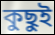
কুছুই